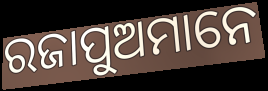
ରଜାପୁଅମାନେ